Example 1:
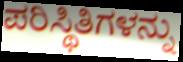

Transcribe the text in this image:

ಪರಿಸ್ಥಿತಿಗಳನ್ನು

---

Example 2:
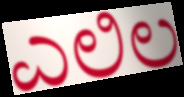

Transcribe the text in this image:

ಎಲಿಲ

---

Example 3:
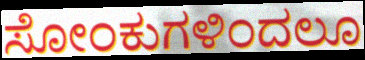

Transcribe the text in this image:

ಸೋಂಕುಗಳಿಂದಲೂ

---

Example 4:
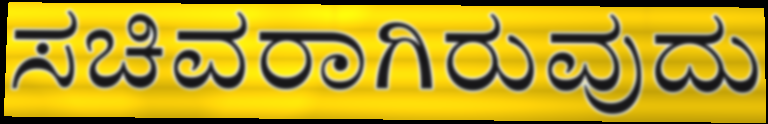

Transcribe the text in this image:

ಸಚಿವರಾಗಿರುವುದು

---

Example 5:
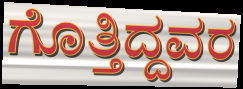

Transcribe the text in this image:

ಗೊತ್ತಿದ್ದವರ